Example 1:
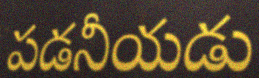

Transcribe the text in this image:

పడనీయడు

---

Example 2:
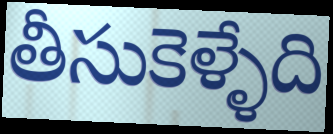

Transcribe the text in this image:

తీసుకెళ్ళేది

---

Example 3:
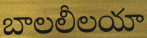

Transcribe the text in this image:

బాలలీలయా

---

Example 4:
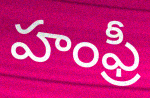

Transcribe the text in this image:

హంఫ్రీ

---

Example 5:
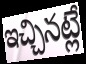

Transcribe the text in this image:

ఇచ్చినట్లే